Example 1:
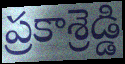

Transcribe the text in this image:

ప్రకాశ్రెడ్డి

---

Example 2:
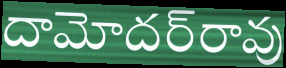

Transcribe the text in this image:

దామోదర్‌రావు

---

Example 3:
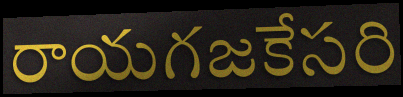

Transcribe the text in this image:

రాయగజకేసరి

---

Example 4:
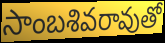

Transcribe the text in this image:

సాంబశివరావుతో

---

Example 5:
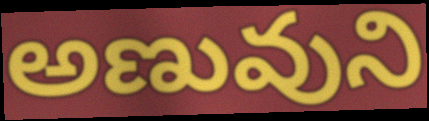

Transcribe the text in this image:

అణువుని